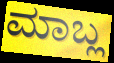
ಮಾಬ್ಲ